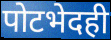
पोटभेदही